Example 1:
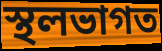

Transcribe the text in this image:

স্থলভাগত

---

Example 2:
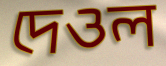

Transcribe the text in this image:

দেওল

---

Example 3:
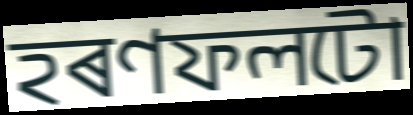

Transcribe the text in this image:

হৰণফলটো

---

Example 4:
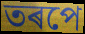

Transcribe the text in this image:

তৰপে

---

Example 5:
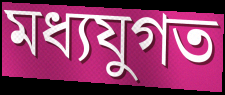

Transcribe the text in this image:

মধ্যযুগত